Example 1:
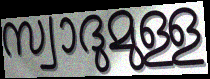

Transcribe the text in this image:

സ്വാദുമുള്ള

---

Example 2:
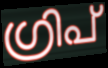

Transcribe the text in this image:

ഗ്രിപ്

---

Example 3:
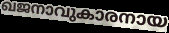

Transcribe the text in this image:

ഖജനാവുകാരനായ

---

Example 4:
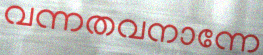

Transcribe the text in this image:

വന്നതവനാന്നേ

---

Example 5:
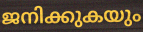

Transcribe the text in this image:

ജനിക്കുകയും